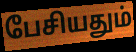
பேசியதும்